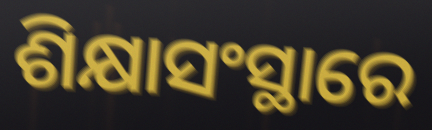
ଶିକ୍ଷାସଂସ୍ଥାରେ